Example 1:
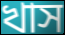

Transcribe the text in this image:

খাস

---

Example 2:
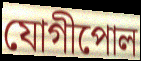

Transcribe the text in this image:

যোগীপোল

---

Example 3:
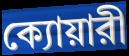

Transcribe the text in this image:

ক্যোয়ারী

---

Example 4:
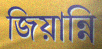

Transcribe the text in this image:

জিয়ান্নি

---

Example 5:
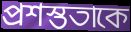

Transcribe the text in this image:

প্রশস্ততাকে